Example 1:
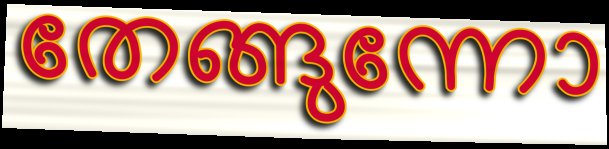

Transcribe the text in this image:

തേങ്ങുന്നോ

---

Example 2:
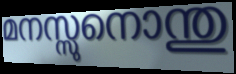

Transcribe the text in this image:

മനസ്സുനൊന്തു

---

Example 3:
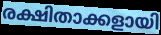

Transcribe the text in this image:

രക്ഷിതാക്കളായി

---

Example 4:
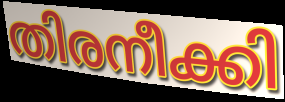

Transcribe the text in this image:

തിരനീക്കി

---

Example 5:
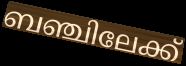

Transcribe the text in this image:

ബഞ്ചിലേക്ക്